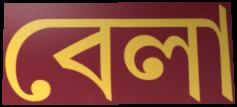
বেলা